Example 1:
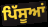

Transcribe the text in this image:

ਪਿੱਸੂਆਂ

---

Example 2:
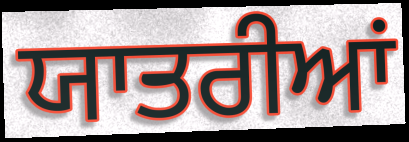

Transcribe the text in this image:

ਯਾਤਰੀਆਂ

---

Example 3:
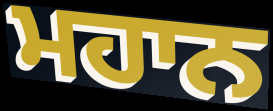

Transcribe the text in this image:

ਮਹਾਨ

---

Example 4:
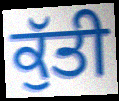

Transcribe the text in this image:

ਕੁੱਤੀ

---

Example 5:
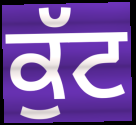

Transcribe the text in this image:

ਕੁੱਟ